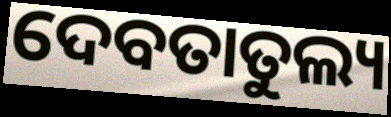
ଦେବତାତୁଲ୍ୟ